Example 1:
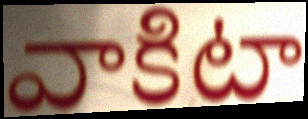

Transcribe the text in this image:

వాకిటా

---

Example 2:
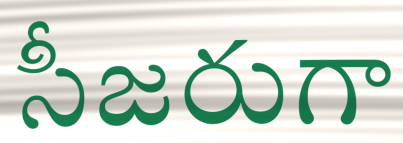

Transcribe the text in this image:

సీజరుగా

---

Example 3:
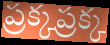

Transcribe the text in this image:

ప్రక్కప్రక్క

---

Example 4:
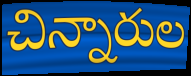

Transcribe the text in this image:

చిన్నారుల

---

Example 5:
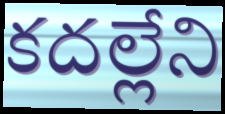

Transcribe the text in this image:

కదల్లేని